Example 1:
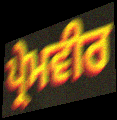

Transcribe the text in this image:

ਪ੍ਰੇਮਵੀਰ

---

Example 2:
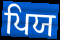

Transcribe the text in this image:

ਪਿਯ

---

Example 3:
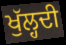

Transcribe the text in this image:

ਖੁੱਲ੍ਹਦੀ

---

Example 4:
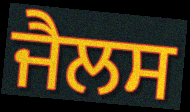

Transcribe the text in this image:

ਜੈਲਸ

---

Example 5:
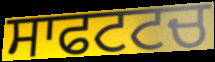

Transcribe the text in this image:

ਸਾਫਟਟਚ